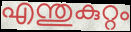
എന്തുകുറ്റം